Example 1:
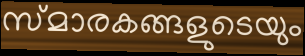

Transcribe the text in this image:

സ്മാരകങ്ങളുടെയും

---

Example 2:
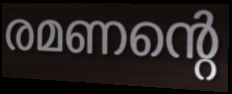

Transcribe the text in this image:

രമണന്റെ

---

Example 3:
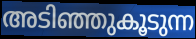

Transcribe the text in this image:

അടിഞ്ഞുകൂടുന്ന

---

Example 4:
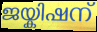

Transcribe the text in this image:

ജയ്കിഷന്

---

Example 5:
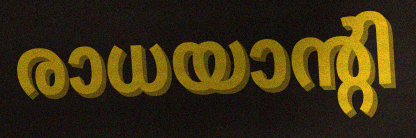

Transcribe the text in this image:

രാധയാന്റി